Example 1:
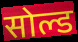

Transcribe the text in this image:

सोल्ड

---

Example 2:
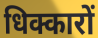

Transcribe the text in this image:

धिक्कारों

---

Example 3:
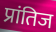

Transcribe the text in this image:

प्रांतिज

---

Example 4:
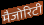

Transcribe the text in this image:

मैजोरिटी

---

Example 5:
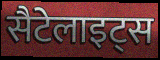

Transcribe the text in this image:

सैटेलाइट्स